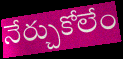
నేర్చుకోలేం